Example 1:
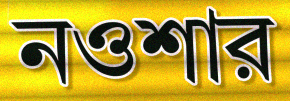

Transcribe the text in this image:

নওশার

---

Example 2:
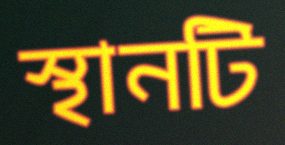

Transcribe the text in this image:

স্থানটি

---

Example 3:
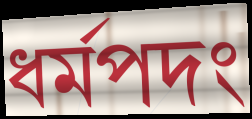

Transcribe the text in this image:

ধর্মপদং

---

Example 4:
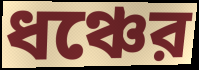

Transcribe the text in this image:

ধঞ্চের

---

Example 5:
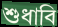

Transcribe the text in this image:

শুধাবি